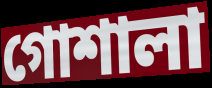
গোশালা